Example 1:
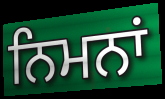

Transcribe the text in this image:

ਨਿਮਨਾਂ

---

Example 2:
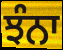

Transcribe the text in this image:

ਝੰਨਾ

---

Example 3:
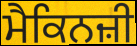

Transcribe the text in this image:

ਮੈਕਿਨਜ਼ੀ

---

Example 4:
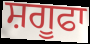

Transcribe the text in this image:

ਸ਼ਗੂਫਾ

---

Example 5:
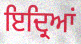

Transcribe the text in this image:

ਇਦ੍ਰਿਆਂ